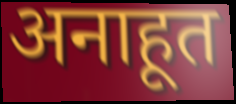
अनाहूत